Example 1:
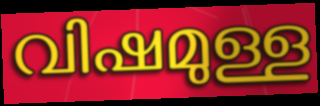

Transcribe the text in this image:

വിഷമുള്ള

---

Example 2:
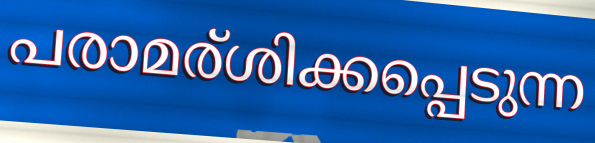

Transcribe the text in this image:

പരാമര്ശിക്കപ്പെടുന്ന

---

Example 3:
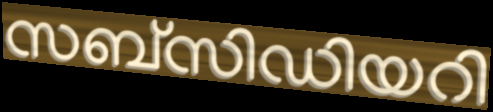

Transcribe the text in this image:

സബ്സിഡിയറി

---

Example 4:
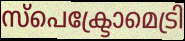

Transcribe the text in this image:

സ്പെക്ട്രോമെട്രി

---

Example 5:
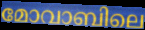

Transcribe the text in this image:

മോവാബിലെ